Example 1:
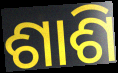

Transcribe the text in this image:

ଶାଶି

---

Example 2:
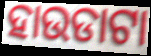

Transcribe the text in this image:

ହାଉଡାଟା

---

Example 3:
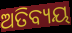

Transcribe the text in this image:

ଅତିବ୍ୟୟ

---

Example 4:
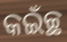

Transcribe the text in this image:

କଇଁଚ୍ଛ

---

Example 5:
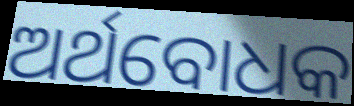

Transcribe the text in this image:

ଅର୍ଥବୋଧକ